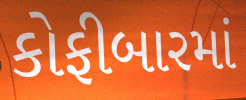
કોફીબારમાં